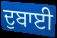
ਦੁਬਾਈ